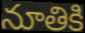
నూతికి